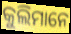
କୁଲିମାନେ